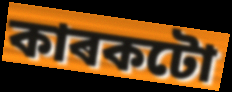
কাৰকটো